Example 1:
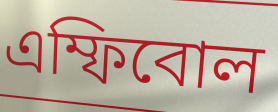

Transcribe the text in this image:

এম্ফিবোল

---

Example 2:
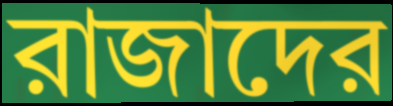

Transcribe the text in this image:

রাজাদের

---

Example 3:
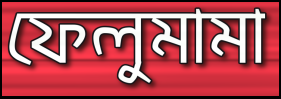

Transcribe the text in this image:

ফেলুমামা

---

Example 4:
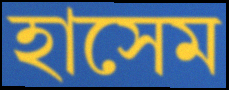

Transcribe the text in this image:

হাসেম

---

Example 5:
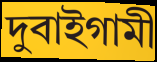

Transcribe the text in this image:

দুবাইগামী